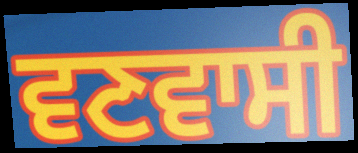
ਵਣਵਾਸੀ